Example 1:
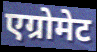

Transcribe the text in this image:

एग्रोमेट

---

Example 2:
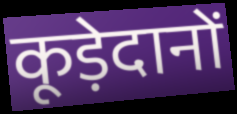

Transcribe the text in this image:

कूड़ेदानों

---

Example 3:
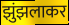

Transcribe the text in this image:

झुंझलाकर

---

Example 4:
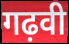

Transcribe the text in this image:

गढ़वी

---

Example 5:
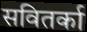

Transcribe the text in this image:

सवितर्का